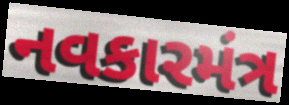
નવકારમંત્ર